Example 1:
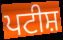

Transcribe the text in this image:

ਪਟੀਸ਼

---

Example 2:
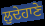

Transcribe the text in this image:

ਲੁਦੇਹਾਣੇ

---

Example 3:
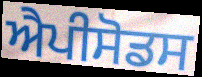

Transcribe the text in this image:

ਐਪੀਸੋਡਸ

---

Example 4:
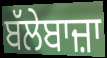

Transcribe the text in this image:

ਬੱਲੇਬਾਜ਼ਾ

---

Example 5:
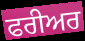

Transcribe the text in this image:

ਫਰੀਅਰ